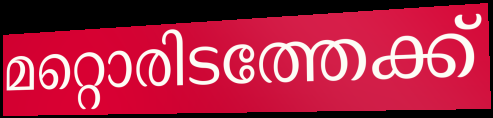
മറ്റൊരിടത്തേക്ക്